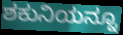
ಶಕುನಿಯನ್ನೂ